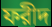
ফরীদ